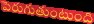
పెరుగుతుంటుంది